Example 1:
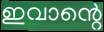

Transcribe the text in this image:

ഇവാന്റെ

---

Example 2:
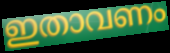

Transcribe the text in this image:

ഇതാവണം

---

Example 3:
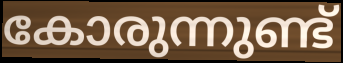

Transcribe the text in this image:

കോരുന്നുണ്ട്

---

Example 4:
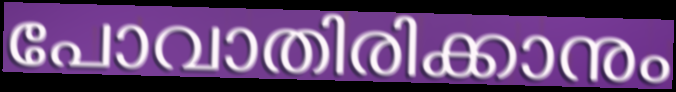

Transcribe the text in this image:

പോവാതിരിക്കാനും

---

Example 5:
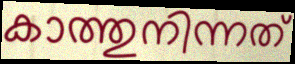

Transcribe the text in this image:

കാത്തുനിന്നത്